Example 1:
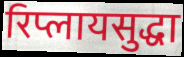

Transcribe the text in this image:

रिप्लायसुद्धा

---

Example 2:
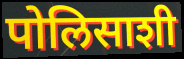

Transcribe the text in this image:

पोलिसाशी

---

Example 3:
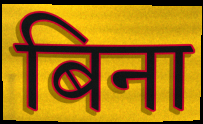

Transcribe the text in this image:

बिना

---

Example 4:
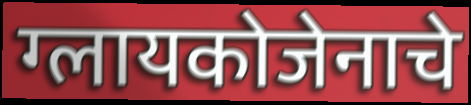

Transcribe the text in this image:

ग्लायकोजेनाचे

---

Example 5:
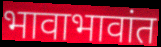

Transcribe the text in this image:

भावाभावांत